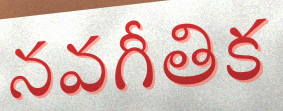
నవగీతిక